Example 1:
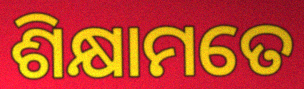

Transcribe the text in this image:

ଶିକ୍ଷାମତେ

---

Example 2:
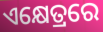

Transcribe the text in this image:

ଏକ୍ଷେତ୍ରରେ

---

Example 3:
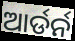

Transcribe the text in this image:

ଆର୍ଡର୍ନ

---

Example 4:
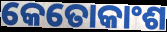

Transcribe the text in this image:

କେତୋକାଂଶ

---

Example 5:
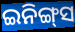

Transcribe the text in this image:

ଇନିଙ୍ଗ୍‌ସ